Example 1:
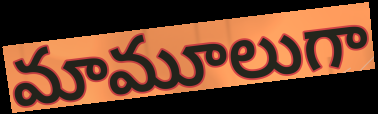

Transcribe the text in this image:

మామూలుగా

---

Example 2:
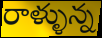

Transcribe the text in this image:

రాళ్ళున్న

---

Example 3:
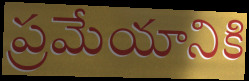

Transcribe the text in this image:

ప్రమేయానికి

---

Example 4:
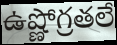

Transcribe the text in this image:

ఉష్ణోగ్రతలే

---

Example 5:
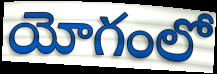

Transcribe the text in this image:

యోగంలో